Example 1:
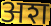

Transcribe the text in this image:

अश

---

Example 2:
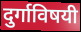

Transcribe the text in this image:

दुर्गाविषयी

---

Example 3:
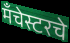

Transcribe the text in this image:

मँचेस्टरचे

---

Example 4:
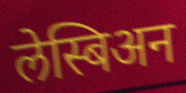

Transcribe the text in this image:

लेस्बिअन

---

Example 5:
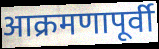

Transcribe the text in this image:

आक्रमणापूर्वी